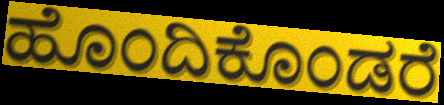
ಹೊಂದಿಕೊಂಡರೆ